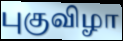
புகுவிழா